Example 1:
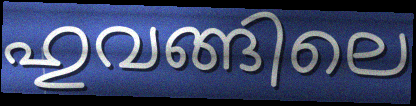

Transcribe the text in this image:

ഹുവങ്ങിലെ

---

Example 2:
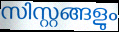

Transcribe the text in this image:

സിസ്റ്റങ്ങളും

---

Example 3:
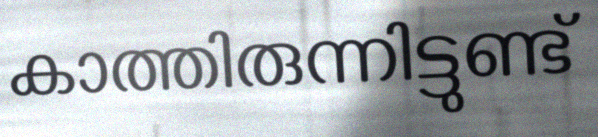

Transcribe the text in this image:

കാത്തിരുന്നിട്ടുണ്ട്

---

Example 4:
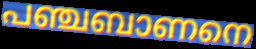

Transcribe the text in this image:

പഞ്ചബാണനെ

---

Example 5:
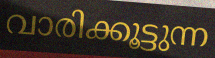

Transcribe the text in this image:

വാരിക്കൂട്ടുന്ന